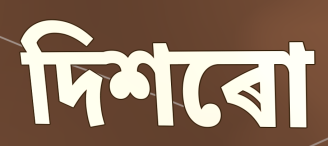
দিশৰো